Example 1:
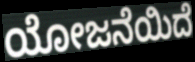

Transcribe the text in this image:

ಯೋಜನೆಯಿದೆ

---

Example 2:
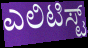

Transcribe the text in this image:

ಎಲಿಟಿಸ್ಟ್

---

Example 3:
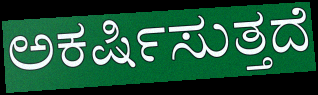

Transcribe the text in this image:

ಅಕರ್ಷಿಸುತ್ತದೆ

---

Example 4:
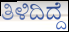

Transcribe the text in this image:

ತಿಳಿದಿದ್ದೆ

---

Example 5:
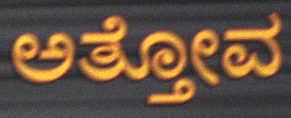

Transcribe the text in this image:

ಅತ್ತೋವ